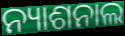
ନ୍ୟାଶନାଲ